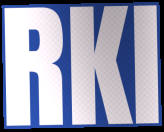
RKI